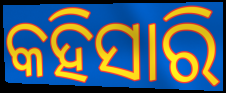
କହିସାରି